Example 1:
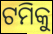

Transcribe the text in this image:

ଟମିକୁ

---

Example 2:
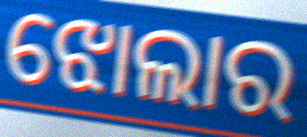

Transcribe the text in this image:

ଝୋଲାର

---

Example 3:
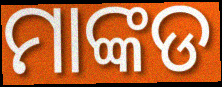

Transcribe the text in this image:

ମାଙ୍କଡ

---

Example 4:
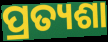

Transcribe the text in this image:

ପ୍ରତ୍ୟଶା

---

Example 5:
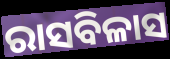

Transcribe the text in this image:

ରାସବିଳାସ